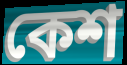
কেশ